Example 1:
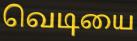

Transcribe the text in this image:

வெடியை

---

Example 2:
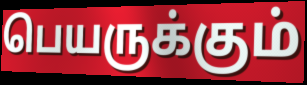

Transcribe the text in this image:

பெயருக்கும்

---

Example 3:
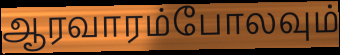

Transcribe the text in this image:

ஆரவாரம்போலவும்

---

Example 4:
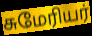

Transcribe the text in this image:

சுமேரியர்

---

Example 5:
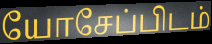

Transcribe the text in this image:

யோசேப்பிடம்